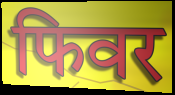
फिवर